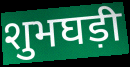
शुभघड़ी